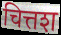
चित्तश